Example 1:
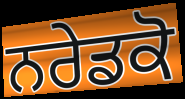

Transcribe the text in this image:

ਨਰੇਡਕੋ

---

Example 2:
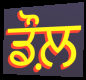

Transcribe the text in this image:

ਡੌਲ਼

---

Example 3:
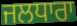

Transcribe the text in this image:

ਜਲਧਾਰਾ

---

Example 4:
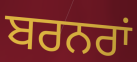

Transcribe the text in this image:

ਬਰਨਰਾਂ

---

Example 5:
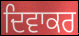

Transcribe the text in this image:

ਦਿਵਾਕਰ